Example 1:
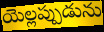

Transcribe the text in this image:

యెల్లప్పుడును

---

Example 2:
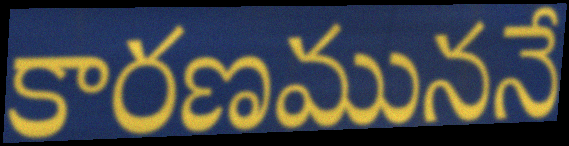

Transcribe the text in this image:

కారణముననే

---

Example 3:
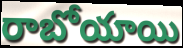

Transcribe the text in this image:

రాబోయాయి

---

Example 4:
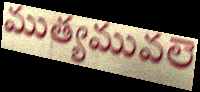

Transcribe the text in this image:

ముత్యమువలె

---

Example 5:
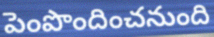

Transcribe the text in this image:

పెంపొందించనుంది